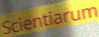
Scientiarum